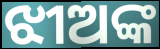
ଝୀଅଙ୍କ